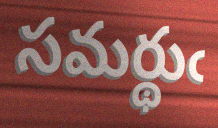
సమర్థుఁ